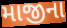
માજીના